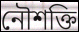
নৌশক্তি